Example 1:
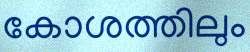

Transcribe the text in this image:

കോശത്തിലും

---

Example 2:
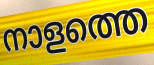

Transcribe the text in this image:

നാളത്തെ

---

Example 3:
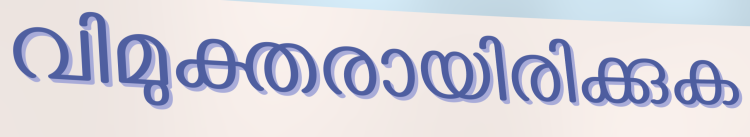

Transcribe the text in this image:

വിമുക്തരായിരിക്കുക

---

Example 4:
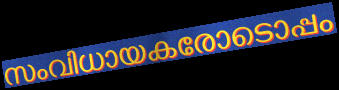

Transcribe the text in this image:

സംവിധായകരോടൊപ്പം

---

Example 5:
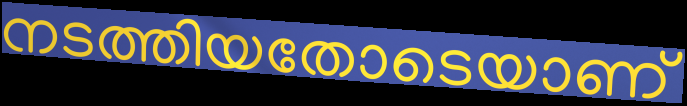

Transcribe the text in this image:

നടത്തിയതോടെയാണ്